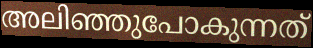
അലിഞ്ഞുപോകുന്നത്